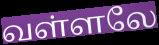
வள்ளலே